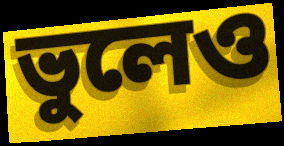
ভুলেও